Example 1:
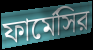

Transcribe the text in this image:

ফার্মেসির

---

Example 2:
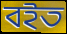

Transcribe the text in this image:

বইত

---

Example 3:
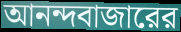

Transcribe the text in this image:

আনন্দবাজারের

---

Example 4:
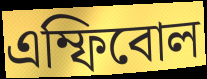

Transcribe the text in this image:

এম্ফিবোল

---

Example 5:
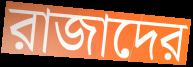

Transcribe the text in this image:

রাজাদের